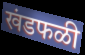
खंडफळी